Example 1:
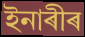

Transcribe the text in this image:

ইনাৰীৰ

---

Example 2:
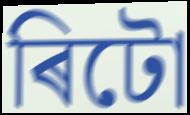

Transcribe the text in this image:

ৰিটো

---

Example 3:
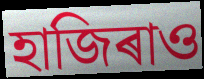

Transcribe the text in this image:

হাজিৰাও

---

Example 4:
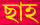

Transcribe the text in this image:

ছাহ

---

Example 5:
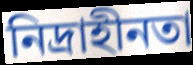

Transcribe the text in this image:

নিদ্ৰাহীনতা